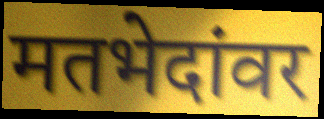
मतभेदांवर